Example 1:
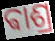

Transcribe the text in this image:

ଵାଶ୍ର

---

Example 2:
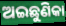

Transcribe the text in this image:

ଅଇଛୁଣିକା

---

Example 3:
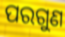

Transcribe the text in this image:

ପରଗୁଣ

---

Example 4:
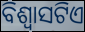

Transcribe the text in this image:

ବିଶ୍ଵାସଟିଏ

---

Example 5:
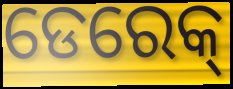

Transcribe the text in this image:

ଡେରେକ୍